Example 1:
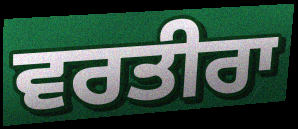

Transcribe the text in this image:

ਵਰਤੀਰਾ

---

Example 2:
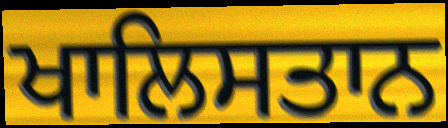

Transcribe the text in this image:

ਖਾਲਿਸਤਾਨ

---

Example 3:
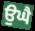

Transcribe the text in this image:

ਉਘੈ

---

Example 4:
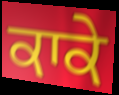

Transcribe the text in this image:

ਕਾਕੇ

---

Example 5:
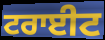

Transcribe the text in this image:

ਟਰਾਈਟ